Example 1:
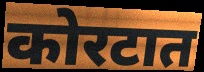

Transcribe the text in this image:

कोरटात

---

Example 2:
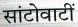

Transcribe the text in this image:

सांटोवाटीं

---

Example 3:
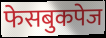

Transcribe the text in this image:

फेसबुकपेज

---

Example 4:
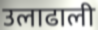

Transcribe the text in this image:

उलाढाली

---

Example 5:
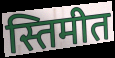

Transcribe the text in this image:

स्तिमीत